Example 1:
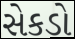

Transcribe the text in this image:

સેકડો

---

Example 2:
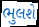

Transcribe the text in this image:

ભુલશે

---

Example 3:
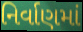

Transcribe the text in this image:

નિર્વાણમાં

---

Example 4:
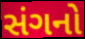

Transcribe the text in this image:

સંગનો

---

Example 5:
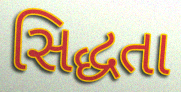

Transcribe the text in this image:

સિદ્ધતા